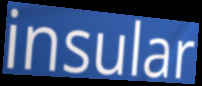
insular